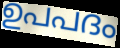
ഉപപദം